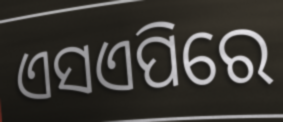
ଏସଏପିରେ